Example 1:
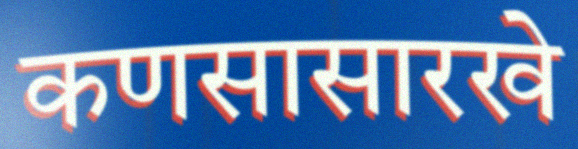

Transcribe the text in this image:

कणसासारखे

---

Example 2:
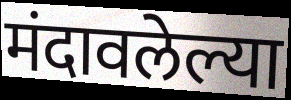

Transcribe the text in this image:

मंदावलेल्या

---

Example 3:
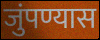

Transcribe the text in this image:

जुंपण्यास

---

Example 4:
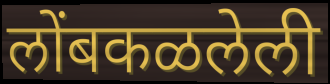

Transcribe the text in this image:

लोंबकळलेली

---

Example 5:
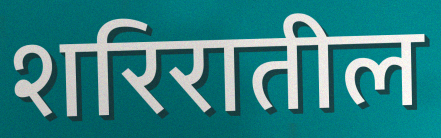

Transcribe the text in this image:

शरिरातील